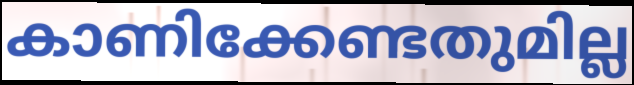
കാണിക്കേണ്ടതുമില്ല